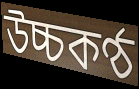
উচ্চকণ্ঠ